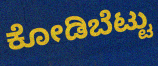
ಕೋಡಿಬೆಟ್ಟು